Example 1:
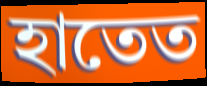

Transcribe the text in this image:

হাতেত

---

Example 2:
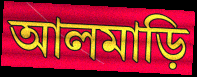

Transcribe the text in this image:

আলমাড়ি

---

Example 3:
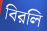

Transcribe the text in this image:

বিরলি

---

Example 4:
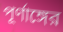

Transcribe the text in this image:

পূর্ণাঙ্গের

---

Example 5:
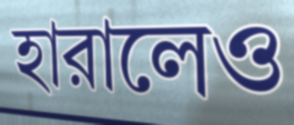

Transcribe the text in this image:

হারালেও